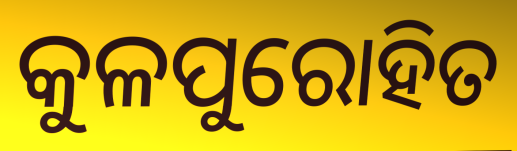
କୁଳପୁରୋହିତ